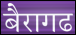
बैरागढ